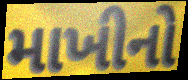
માખીનો